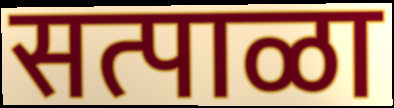
सत्पाळा